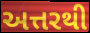
અત્તરથી